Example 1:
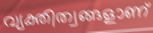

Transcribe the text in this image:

വ്യക്തിത്വങ്ങളാണ്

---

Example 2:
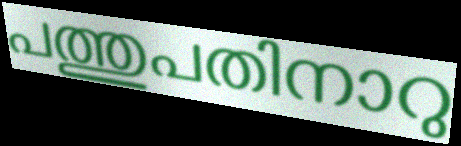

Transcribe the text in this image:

പത്തുപതിനാറു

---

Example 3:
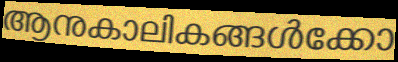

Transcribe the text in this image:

ആനുകാലികങ്ങൾക്കോ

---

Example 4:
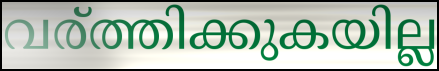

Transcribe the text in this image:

വര്ത്തിക്കുകയില്ല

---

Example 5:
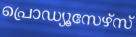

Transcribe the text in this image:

പ്രൊഡ്യൂസേഴ്സ്